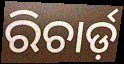
ରିଚାର୍ଡ଼